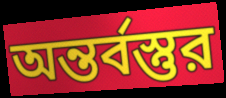
অন্তর্বস্তুর